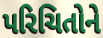
પરિચિતોને